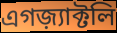
এগজ়্যাক্টলি